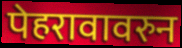
पेहरावावरुन